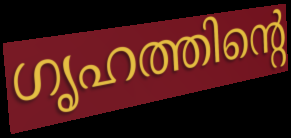
ഗൃഹത്തിന്റെ